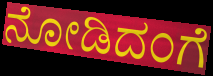
ನೋಡಿದಂಗೆ